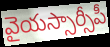
వైయస్సార్సీపీ